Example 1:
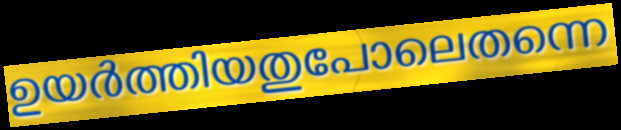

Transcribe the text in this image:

ഉയർത്തിയതുപോലെതന്നെ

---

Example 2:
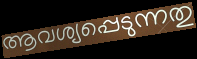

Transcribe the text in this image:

ആവശ്യപ്പെടുന്നതു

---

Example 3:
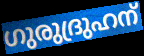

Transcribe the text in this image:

ഗുരുദ്രുഹന്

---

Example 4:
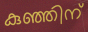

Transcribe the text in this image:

കുഞ്ഞിന്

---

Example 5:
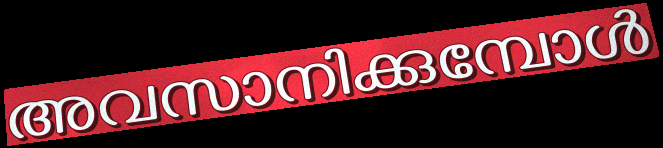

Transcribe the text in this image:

അവസാനിക്കുമ്പോൾ